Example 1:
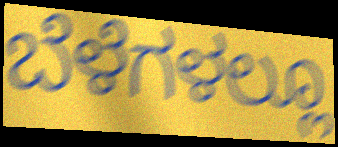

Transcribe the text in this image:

ಬೆಳೆಗಳಲ್ಲೂ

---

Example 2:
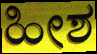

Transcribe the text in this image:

ಹೀಶ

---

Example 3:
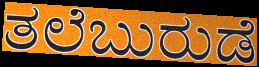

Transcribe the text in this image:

ತಲೆಬುರುಡೆ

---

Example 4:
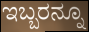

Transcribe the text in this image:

ಇಬ್ಬರನ್ನೂ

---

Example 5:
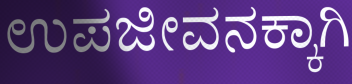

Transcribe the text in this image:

ಉಪಜೀವನಕ್ಕಾಗಿ